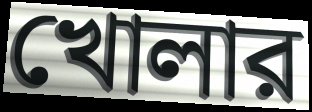
খোলার